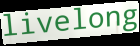
livelong